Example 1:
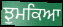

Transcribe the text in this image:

ਝੁਮਕਿਆ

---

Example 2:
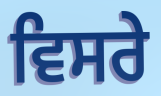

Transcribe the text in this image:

ਵਿਸਰੇ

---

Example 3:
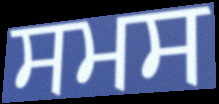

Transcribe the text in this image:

ਸਮਸ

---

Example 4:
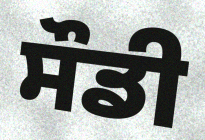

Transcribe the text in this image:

ਸੌਡੀ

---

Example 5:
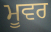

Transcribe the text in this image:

ਮੂਵਰ